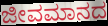
ಜೀವಮಾನದ